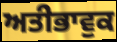
ਅਤੀਭਾਵੁਕ